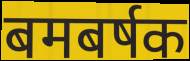
बमबर्षक